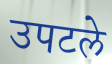
उपटले